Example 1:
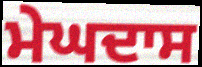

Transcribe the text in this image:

ਮੇਘਦਾਸ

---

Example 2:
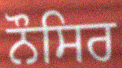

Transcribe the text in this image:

ਨੌਸਿਰ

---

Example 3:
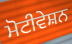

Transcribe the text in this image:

ਮੋਟੀਵੇਸ਼ਨ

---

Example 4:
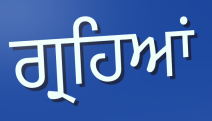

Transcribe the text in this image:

ਗ੍ਰਹਿਆਂ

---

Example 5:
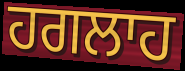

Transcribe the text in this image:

ਹਗਲਾਹ